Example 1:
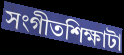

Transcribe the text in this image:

সংগীতশিক্ষাটা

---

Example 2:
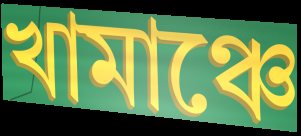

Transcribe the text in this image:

খামাঞ্চে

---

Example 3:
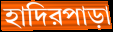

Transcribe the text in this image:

হাদিরপাড়া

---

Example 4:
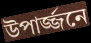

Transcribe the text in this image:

উপার্জ্জনে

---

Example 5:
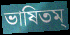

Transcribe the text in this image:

ভাষিতম্